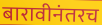
बारावीनंतरच